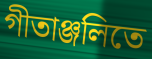
গীতাঞ্জলিতে